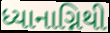
ધ્યાનાગ્નિથી